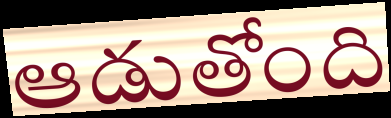
ఆడుతోంది